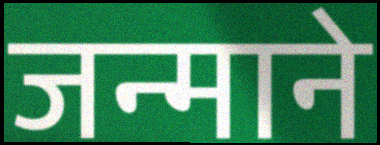
जन्माने